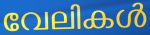
വേലികൾ